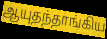
ஆயுதந்தாங்கிய